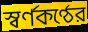
স্বর্ণকণ্ঠের